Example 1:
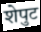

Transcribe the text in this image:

शेपुट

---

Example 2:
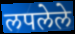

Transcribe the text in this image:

लपलेले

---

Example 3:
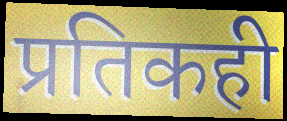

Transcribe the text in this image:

प्रतिकही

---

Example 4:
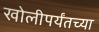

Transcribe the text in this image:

खोलीपर्यंतच्या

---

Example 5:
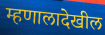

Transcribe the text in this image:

म्हणालादेखील